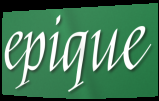
epique